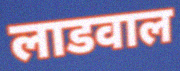
लाडवाल